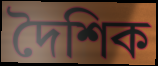
দৈশিক